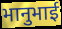
भानुभाई